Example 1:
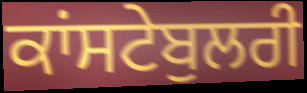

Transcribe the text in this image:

ਕਾਂਸਟੇਬੁਲਰੀ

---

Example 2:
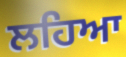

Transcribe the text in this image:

ਲਹਿਆ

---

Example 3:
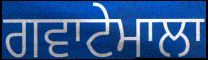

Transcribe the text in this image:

ਗਵਾਟੇਮਾਲਾ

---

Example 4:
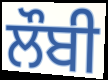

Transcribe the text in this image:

ਲੌਬੀ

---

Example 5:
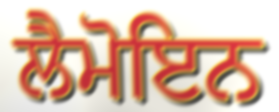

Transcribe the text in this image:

ਲੈਮੋਇਨ